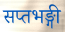
सप्तभङ्गी